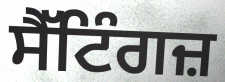
ਸੈੱਟਿੰਗਜ਼